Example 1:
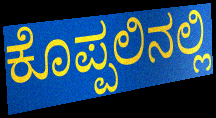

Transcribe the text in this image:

ಕೊಪ್ಪಲಿನಲ್ಲಿ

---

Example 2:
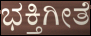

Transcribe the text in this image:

ಭಕ್ತಿಗೀತೆ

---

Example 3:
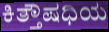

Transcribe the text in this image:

ಕಿತ್ತೌಷಧಿಯ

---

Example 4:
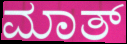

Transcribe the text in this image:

ಮಾತ್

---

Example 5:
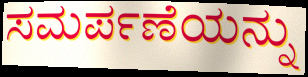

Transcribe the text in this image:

ಸಮರ್ಪಣೆಯನ್ನು